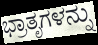
ಭ್ರಾತೃಗಳನ್ನು